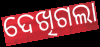
ଦେଖିଗଲା